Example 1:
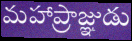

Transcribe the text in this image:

మహాప్రాజ్ఞుడు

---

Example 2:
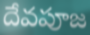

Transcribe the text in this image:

దేవపూజ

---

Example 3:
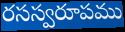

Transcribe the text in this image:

రసస్వరూపము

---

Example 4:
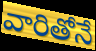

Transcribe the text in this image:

వారితోనే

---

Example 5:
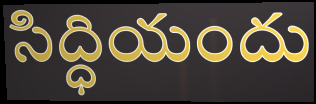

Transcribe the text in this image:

సిద్ధియందు